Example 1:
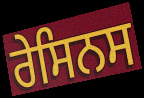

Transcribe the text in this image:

ਰੇਸਿਨਸ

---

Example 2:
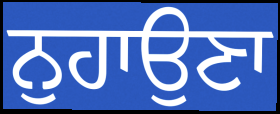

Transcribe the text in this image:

ਨੁਹਾਉਣਾ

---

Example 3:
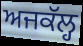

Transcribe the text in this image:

ਅਜਕੱਲ੍ਹ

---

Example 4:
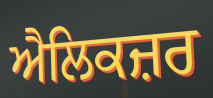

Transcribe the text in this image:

ਐਲਿਕਜ਼ਰ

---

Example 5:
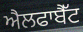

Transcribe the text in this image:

ਐਲਫਾਬੈੱਟ